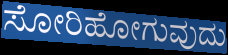
ಸೋರಿಹೋಗುವುದು